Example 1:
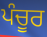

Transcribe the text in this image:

ਪੰਚੂਰ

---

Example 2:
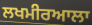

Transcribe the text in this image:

ਲਖਮੀਰਆਲਾ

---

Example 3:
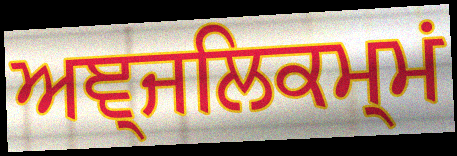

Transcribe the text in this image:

ਅਞ੍ਜਲਿਕਮ੍ਮਂ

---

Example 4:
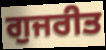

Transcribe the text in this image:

ਗੁਜਰੀਤ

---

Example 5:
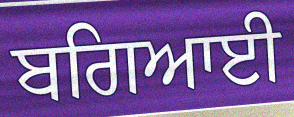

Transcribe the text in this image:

ਬਗਿਆਈ